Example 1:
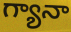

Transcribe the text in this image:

గ్యానా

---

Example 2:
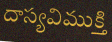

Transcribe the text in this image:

దాస్యవిముక్తి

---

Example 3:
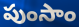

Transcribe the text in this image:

పుంసాం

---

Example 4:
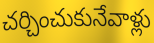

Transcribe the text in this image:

చర్చించుకునేవాళ్లు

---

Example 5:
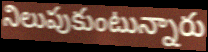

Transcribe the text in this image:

నిలుపుకుంటున్నారు